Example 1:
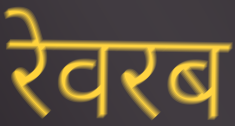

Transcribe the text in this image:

रेवरब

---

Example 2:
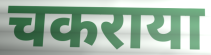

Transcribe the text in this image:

चकराया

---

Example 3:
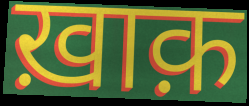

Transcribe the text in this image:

ख़ाक़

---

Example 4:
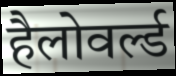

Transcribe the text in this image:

हैलोवर्ल्ड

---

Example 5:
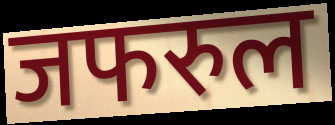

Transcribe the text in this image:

जफरुल